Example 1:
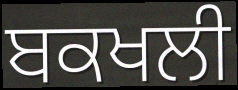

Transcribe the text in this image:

ਬਕਖਲੀ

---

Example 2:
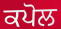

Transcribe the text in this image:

ਕਪੋਲ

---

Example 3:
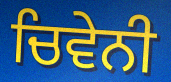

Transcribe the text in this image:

ਚਿਵੇਨੀ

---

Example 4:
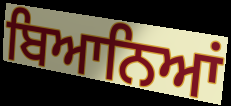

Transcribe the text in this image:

ਬਿਆਨਿਆਂ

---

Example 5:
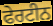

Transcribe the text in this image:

ਫੇਰਟੀਨ